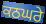
ਕਠਘਰੇ